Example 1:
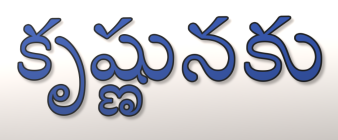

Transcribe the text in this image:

కృష్ణునకు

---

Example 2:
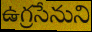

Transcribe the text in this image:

ఉగ్రసేనుని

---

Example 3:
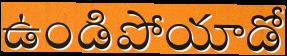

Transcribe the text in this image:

ఉండిపోయాడో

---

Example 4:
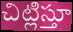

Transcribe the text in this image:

చిట్లిస్తూ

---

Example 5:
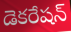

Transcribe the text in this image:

డెకరేషన్